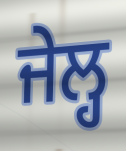
ਜੇਲ੍ਹ